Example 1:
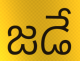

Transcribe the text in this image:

జడే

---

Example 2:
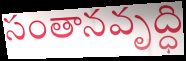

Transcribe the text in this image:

సంతానవృద్ధి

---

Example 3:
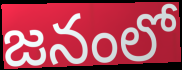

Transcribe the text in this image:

జనంలో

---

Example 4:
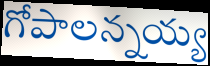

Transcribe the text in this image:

గోపాలన్నయ్య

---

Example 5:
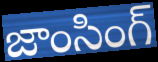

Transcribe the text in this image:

జాంసింగ్